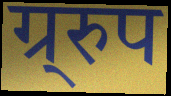
ग्र्रुप